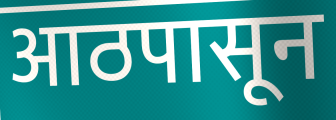
आठपासून